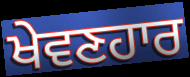
ਖੇਵਣਹਾਰ